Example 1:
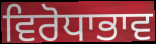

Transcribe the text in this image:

ਵਿਰੋਧਾਭਾਵ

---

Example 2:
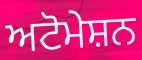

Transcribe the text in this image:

ਅਟੋਮੇਸ਼ਨ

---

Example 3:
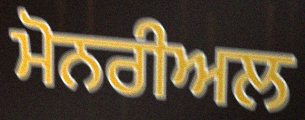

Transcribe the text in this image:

ਮੋਨਰੀਅਲ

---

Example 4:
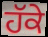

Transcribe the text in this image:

ਹੱਕੇ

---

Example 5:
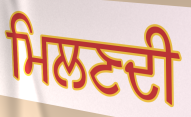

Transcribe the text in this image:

ਮਿਲਣਦੀ